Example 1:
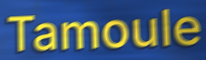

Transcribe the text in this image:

Tamoule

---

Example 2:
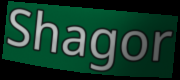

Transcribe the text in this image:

Shagor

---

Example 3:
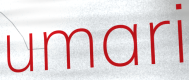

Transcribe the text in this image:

umari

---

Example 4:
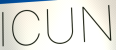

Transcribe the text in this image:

ICUN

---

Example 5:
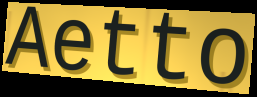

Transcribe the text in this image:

Aetto